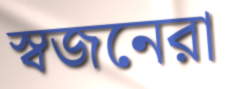
স্বজনেরা